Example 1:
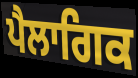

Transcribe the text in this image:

ਪੈਲਾਗਿਕ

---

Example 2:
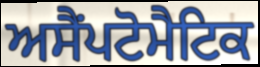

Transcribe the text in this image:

ਅਸੈਂਪਟੋਮੈਟਿਕ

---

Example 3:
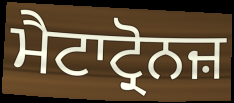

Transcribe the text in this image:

ਮੈਟਾਟ੍ਰੋਨਜ਼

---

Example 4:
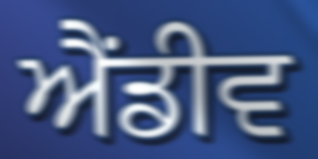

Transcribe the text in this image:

ਐਂਡੀਵ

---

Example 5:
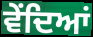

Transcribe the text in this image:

ਵੇਂਦਿਆਂ